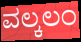
ವಲ್ಕಲಂ